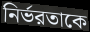
নির্ভরতাকে